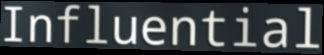
Influential